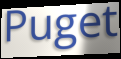
Puget